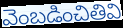
వెంబడించితివి